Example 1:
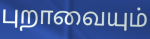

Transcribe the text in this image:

புறாவையும்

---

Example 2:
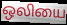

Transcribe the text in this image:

ஒலியை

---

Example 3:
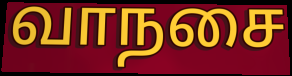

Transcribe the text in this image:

வாநசை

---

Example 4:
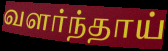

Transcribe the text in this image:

வளர்ந்தாய்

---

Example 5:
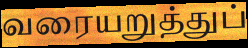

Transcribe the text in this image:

வரையறுத்துப்